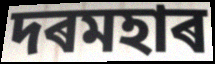
দৰমহাৰ